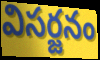
విసర్జనం